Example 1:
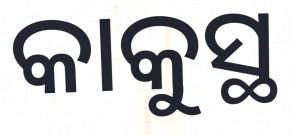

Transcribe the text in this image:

କାକୁସ୍ଥ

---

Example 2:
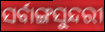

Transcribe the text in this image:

ସର୍ବାଙ୍ଗସୁନ୍ଦରୀ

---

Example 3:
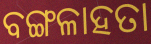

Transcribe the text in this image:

ବଙ୍ଗଳାହତା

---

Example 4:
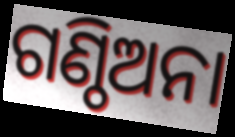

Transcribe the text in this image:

ଗଣ୍ଠିଅନା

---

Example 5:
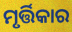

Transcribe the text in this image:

ମୃର୍ତ୍ତିକାର